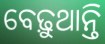
ବେଢ଼ୁଥାନ୍ତି